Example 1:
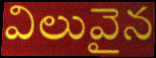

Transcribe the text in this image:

విలువైన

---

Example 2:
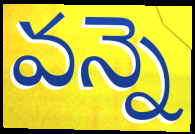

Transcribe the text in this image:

వన్నె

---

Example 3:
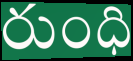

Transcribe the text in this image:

రుంధి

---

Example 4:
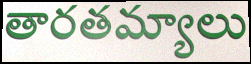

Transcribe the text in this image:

తారతమ్యాలు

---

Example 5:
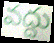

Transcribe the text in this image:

వద్దు